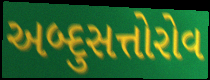
અબ્દુસત્તોરોવ